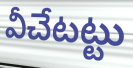
వీచేటట్టు